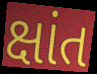
ક્ષાંત